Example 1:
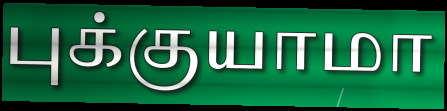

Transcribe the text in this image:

புக்குயாமா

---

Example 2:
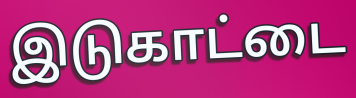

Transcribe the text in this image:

இடுகாட்டை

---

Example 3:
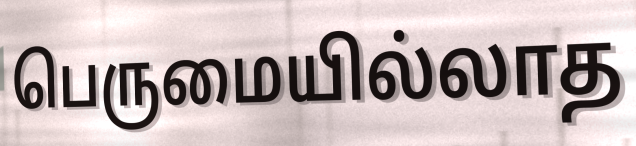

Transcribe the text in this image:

பெருமையில்லாத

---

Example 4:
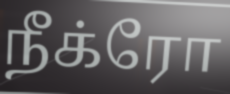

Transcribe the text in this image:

நீக்ரோ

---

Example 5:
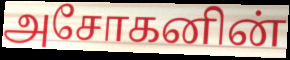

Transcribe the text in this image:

அசோகனின்